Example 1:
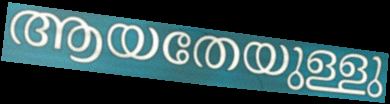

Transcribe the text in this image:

ആയതേയുള്ളു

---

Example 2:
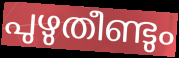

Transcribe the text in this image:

പുഴുതീണ്ടും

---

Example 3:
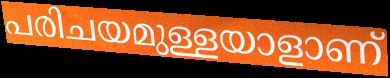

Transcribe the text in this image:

പരിചയമുള്ളയാളാണ്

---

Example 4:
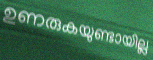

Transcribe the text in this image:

ഉണരുകയുണ്ടായില്ല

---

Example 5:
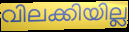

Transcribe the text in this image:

വിലക്കിയില്ല